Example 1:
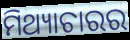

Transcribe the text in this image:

ମିଥ୍ୟାଚାରର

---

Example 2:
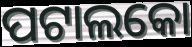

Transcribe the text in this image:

ପଟାଲକୋ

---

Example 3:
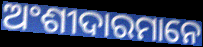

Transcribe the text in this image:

ଅଂଶୀଦାରମାନେ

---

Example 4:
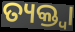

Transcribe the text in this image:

ତ୍ୟକ୍ତ୍ୱା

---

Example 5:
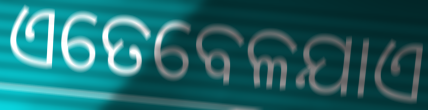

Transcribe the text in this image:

ଏତେବେଳଯାଏ